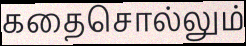
கதைசொல்லும்